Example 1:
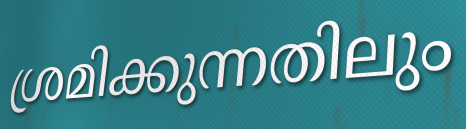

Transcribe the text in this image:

ശ്രമിക്കുന്നതിലും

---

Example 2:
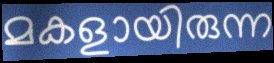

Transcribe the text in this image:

മകളായിരുന്ന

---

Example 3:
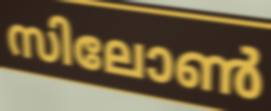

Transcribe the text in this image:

സിലോൺ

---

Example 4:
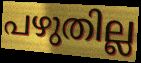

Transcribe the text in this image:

പഴുതില്ല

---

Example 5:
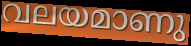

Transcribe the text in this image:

വലയമാണു